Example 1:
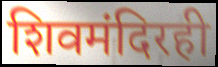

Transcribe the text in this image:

शिवमंदिरही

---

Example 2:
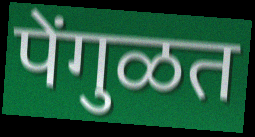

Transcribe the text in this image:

पेंगुळत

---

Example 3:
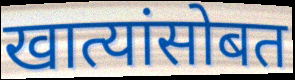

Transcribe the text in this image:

खात्यांसोबत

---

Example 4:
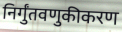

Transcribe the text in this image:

निर्गुंतवणुकीकरण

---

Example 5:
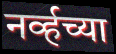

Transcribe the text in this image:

नर्व्हच्या